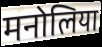
मनोलिया